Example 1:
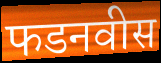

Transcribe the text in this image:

फडनवीस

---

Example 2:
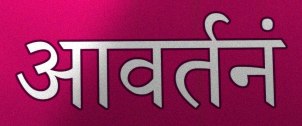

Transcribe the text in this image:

आवर्तनं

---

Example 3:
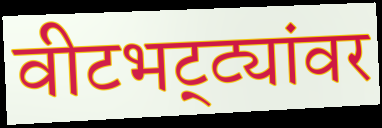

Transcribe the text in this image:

वीटभट्ट्यांवर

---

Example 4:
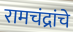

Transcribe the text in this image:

रामचंद्रांचे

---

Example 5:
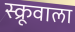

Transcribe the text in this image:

स्क्रूवाला